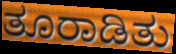
ತೂರಾಡಿತು